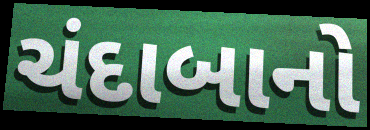
ચંદાબાનો